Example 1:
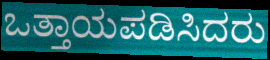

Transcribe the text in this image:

ಒತ್ತಾಯಪಡಿಸಿದರು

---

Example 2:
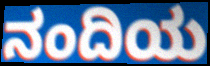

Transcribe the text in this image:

ನಂದಿಯ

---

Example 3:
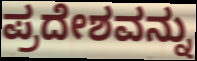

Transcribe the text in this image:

ಪ್ರದೇಶವನ್ನು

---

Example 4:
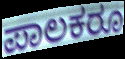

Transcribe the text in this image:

ಪಾಲಕರೂ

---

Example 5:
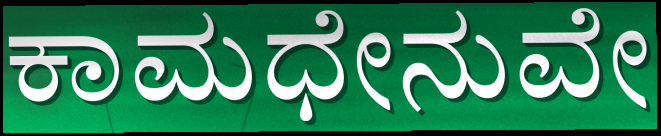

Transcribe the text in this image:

ಕಾಮಧೇನುವೇ